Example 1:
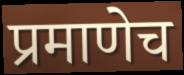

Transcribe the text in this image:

प्रमाणेच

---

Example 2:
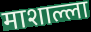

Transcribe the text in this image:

माशाल्ला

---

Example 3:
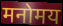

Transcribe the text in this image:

मनोमय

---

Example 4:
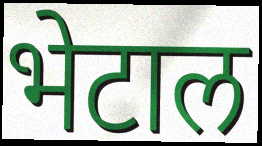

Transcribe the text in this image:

भेटाल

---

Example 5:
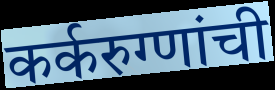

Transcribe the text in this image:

कर्करुग्णांची